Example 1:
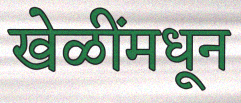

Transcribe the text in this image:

खेळींमधून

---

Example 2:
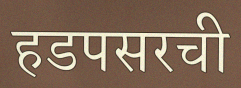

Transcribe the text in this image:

हडपसरची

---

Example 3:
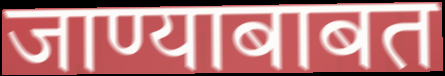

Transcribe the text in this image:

जाण्याबाबत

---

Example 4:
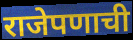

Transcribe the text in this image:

राजेपणाची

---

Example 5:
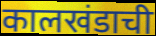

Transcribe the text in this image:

कालखंडाची